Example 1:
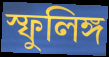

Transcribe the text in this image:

স্ফুলিঙ্গ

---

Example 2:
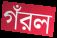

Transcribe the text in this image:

গঁরল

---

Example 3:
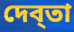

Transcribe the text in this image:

দেব্তা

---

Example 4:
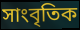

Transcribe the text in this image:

সাংবৃতিক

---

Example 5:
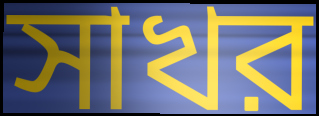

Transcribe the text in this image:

সাখর